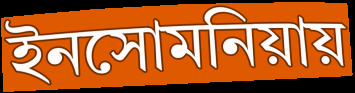
ইনসোমনিয়ায়